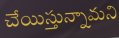
చేయిస్తున్నామని